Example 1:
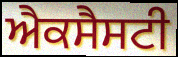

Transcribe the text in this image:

ਐਕਸੈਸਟੀ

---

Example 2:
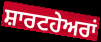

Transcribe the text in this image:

ਸ਼ਾਰਟਹੇਅਰਾਂ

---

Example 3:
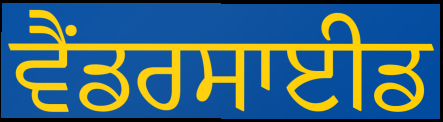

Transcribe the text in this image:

ਵੈਂਡਰਸਾਈਡ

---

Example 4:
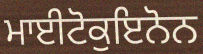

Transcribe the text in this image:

ਮਾਈਟੋਕੁਇਨੋਨ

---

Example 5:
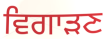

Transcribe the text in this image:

ਵਿਗਾੜਣ